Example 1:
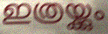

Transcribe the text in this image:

ഇത്രയ്ക്കും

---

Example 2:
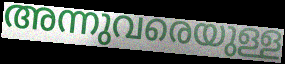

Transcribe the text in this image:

അന്നുവരെയുള്ള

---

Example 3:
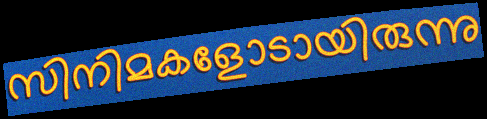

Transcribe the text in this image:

സിനിമകളോടായിരുന്നു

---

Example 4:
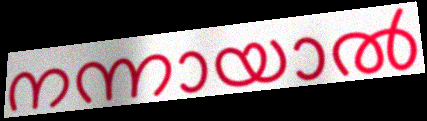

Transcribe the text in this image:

നന്നായാൽ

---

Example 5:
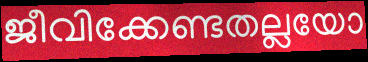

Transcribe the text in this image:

ജീവിക്കേണ്ടതല്ലയോ